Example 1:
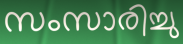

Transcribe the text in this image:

സംസാരിച്ചു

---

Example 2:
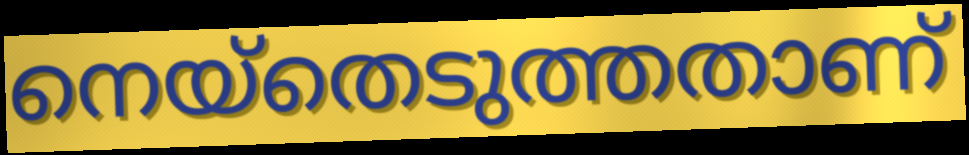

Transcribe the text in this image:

നെയ്തെടുത്തതാണ്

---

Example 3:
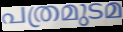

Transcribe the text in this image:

പത്രമുടമ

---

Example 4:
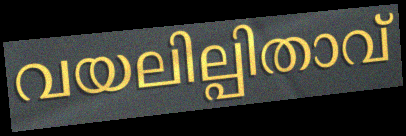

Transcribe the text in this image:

വയലില്പിതാവ്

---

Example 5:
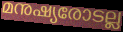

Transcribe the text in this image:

മനുഷ്യരോടല്ല